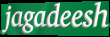
jagadeesh